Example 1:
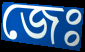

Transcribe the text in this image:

জেঃ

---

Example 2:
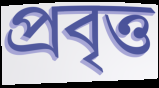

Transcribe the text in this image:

প্রবৃত্ত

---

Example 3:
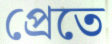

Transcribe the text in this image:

প্রেতে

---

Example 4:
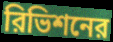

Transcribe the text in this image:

রিভিশনের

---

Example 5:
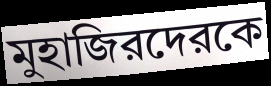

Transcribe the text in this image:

মুহাজিরদেরকে